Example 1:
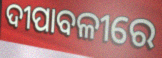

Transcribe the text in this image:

ଦୀପାବଳୀରେ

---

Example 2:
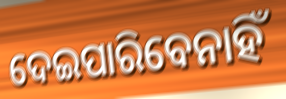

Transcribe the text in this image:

ଦେଇପାରିବେନାହିଁ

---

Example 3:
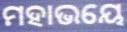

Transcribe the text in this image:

ମହାଭୟେ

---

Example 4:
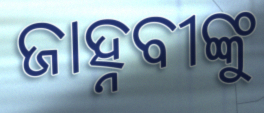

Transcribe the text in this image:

ଜାହ୍ନବୀଙ୍କୁ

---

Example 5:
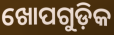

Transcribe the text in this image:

ଖୋପଗୁଡ଼ିକ